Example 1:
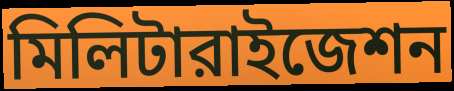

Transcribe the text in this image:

মিলিটারাইজেশন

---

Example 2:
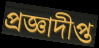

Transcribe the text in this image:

প্রজ্ঞাদীপ্ত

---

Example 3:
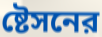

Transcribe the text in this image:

ষ্টেসনের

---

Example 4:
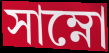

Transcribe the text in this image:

সাম্নো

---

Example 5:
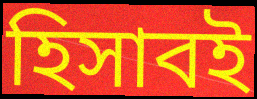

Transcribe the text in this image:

হিসাবই